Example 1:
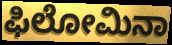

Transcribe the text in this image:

ಫಿಲೋಮಿನಾ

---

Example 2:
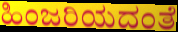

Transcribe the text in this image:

ಹಿಂಜರಿಯದಂತೆ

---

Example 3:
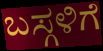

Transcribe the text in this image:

ಬಸ್ಗಳಿಗೆ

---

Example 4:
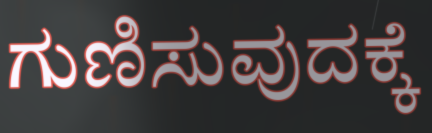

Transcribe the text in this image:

ಗುಣಿಸುವುದಕ್ಕೆ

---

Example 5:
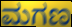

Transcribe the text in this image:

ಮಗಣ